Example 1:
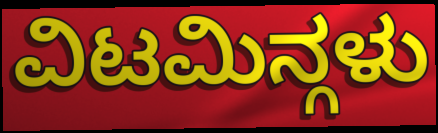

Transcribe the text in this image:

ವಿಟಮಿನ್ಗಳು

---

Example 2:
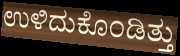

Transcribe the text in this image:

ಉಳಿದುಕೊಂಡಿತ್ತು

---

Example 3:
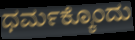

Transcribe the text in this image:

ಧರ್ಮಕ್ಕೊಂದು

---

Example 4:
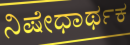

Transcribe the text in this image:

ನಿಷೇಧಾರ್ಥಕ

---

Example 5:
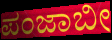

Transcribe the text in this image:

ಪಂಜಾಬೀ